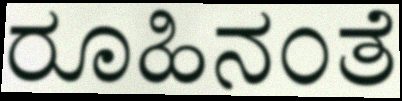
ರೂಹಿನಂತೆ